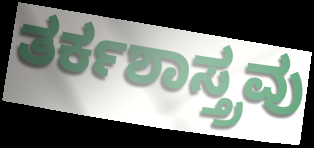
ತರ್ಕಶಾಸ್ತ್ರವು